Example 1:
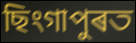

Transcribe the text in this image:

ছিংগাপুৰত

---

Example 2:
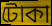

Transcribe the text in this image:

টোকা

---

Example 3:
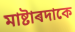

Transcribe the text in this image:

মাষ্টাৰদাকে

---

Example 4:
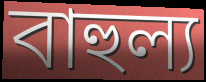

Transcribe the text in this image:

বাহুল্য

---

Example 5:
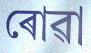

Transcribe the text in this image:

ৰোৱা